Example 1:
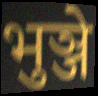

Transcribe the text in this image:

भुञ्जे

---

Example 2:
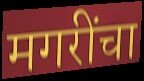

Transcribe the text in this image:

मगरींचा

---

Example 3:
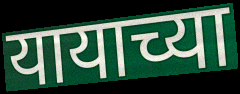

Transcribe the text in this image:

यायाच्या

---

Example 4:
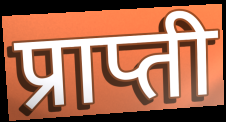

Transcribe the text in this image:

प्राप्ती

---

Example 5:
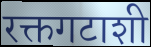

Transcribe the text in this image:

रक्तगटाशी